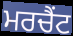
ਮਰਚੈਂਟ